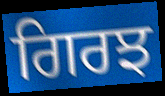
ਗਿਰਝ